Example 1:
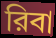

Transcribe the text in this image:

রিবা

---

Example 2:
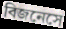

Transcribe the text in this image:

বিজনেসে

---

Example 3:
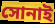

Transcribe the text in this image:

সোনাই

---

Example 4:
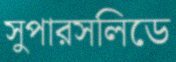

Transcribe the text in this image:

সুপারসলিডে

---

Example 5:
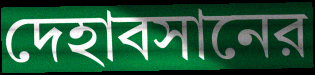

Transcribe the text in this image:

দেহাবসানের